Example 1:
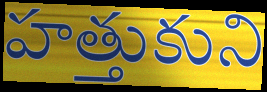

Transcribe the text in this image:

హత్తుకుని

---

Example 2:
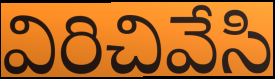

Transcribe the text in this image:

విరిచివేసి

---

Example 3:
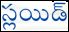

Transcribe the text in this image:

స్లయిడ్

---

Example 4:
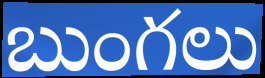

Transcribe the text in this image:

బుంగలు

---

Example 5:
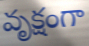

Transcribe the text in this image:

వృక్షంగా